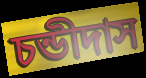
চন্ডীদাস